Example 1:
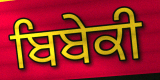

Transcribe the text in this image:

ਬਿਬੇਕੀ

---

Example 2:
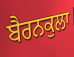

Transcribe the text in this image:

ਬੈਰਨਕੁਲਾ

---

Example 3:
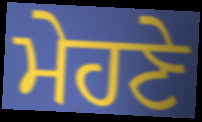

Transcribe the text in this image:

ਮੇਹਣੇ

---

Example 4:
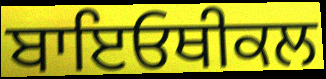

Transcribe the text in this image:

ਬਾਇਓਥੀਕਲ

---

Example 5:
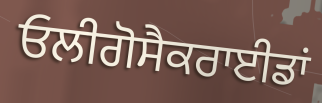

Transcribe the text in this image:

ਓਲੀਗੋਸੈਕਰਾਈਡਾਂ